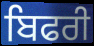
ਬਿਫਰੀ